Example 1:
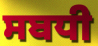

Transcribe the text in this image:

ਸਬਧੀ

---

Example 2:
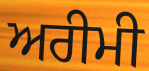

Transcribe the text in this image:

ਅਰੀਮੀ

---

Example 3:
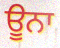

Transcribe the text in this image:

ਊਨਾ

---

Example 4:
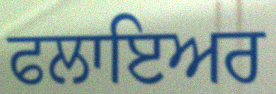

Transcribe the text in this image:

ਫਲਾਇਅਰ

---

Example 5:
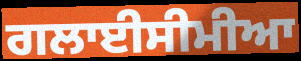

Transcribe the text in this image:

ਗਲਾਈਸੀਮੀਆ